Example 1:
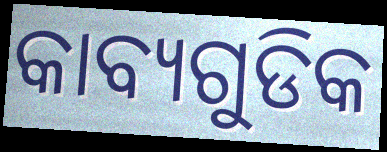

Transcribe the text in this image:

କାବ୍ୟଗୁଡିକ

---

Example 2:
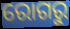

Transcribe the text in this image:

ରୋଗରୁ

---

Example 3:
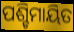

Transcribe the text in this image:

ପଶ୍ଚିମାୟିତ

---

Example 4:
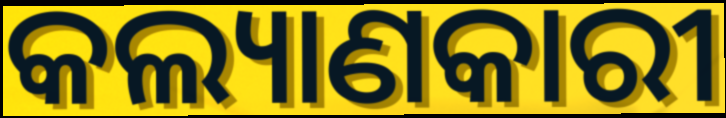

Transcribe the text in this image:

କଲ୍ୟାଣକାରୀ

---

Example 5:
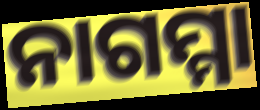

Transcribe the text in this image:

ନାଗମ୍ମା